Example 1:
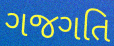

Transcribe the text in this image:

ગજગતિ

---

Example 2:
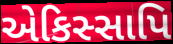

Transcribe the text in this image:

એકિસ્સાપિ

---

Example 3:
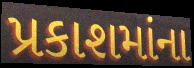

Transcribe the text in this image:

પ્રકાશમાંના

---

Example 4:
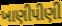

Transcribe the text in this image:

ખાણીપીણી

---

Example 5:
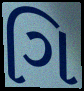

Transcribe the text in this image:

ગિ